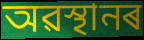
অৱস্থানৰ